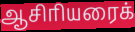
ஆசிரியரைக்